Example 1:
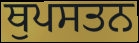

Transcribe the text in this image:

ਥੁਪਸਤਨ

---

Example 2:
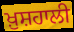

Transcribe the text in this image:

ਖ਼ੁਸ਼ਹਾਲੀ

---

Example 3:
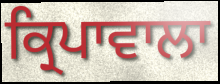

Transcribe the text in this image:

ਕ੍ਰਿਪਾਵਾਲਾ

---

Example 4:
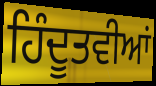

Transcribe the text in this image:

ਹਿੰਦੂਤਵੀਆਂ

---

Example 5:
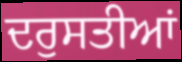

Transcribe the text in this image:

ਦਰੁਸਤੀਆਂ